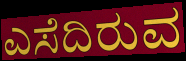
ಎಸೆದಿರುವ